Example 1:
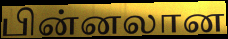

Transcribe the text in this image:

பின்னலான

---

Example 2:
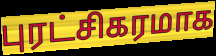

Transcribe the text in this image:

புரட்சிகரமாக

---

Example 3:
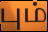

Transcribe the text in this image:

பும்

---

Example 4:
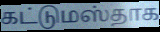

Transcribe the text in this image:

கட்டுமஸ்தாக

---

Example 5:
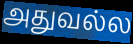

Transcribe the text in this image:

அதுவல்ல